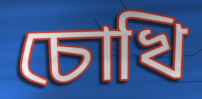
চোখি